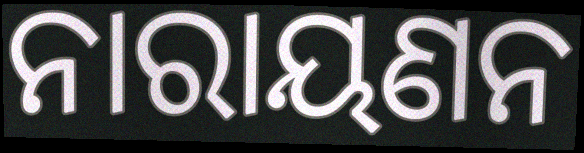
ନାରାୟଣନ